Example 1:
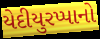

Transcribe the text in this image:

યેદીયુરપ્પાનો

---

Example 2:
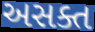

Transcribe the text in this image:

અસક્ત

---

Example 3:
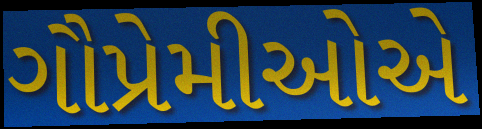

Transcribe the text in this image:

ગૌપ્રેમીઓએ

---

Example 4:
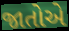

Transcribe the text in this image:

જાતોએ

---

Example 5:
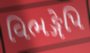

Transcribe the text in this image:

વિભઙ્ગેપિ